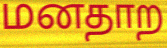
மனதாற